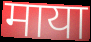
माया